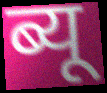
ब्यू